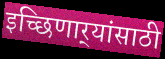
इच्छिणार्यांसाठी